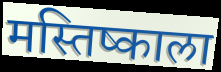
मस्तिष्काला